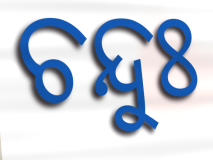
ଚନ୍ଦୁଃ